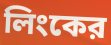
লিংকের